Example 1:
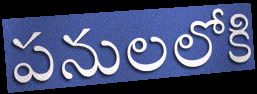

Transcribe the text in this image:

పనులలోకి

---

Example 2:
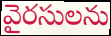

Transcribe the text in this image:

వైరసులను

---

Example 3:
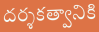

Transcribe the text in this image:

దర్శకత్వానికి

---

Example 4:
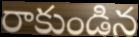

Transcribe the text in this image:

రాకుండిన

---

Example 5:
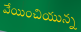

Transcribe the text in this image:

వేయించియున్న